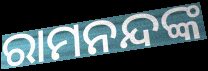
ରାମନନ୍ଦଙ୍କ